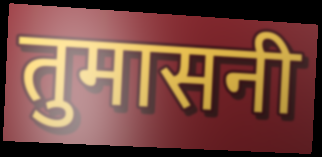
तुमासनी